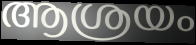
ആശ്രയം